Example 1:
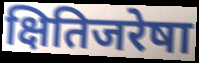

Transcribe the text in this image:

क्षितिजरेषा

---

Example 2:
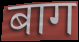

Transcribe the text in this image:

बाग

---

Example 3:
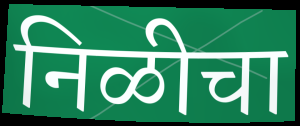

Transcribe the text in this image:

निळीचा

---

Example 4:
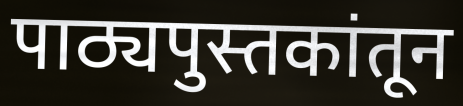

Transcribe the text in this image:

पाठ्यपुस्तकांतून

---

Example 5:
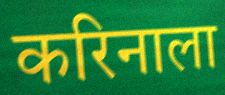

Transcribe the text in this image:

करिनाला